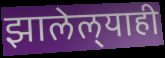
झालेल्याही